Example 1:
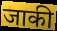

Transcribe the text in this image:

जाकी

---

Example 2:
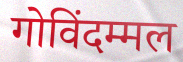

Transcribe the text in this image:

गोविंदम्मल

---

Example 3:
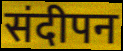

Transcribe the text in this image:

संदीपन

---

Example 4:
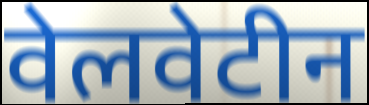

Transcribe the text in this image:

वेलवेटीन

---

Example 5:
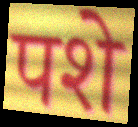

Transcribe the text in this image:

पशे